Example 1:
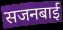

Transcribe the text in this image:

सजनबाई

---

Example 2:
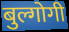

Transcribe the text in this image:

बुल्गोगी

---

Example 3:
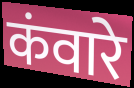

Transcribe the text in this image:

कंवारे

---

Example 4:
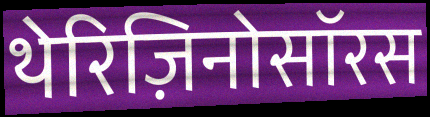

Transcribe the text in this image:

थेरिज़िनोसॉरस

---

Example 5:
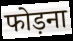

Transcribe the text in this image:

फोड़ना